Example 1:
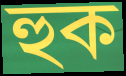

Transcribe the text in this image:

হুক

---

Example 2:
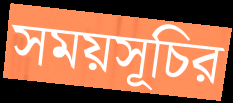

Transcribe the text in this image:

সময়সূচির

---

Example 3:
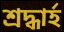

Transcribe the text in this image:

শ্রদ্ধার্হ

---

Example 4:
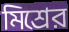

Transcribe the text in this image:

মিশ্রের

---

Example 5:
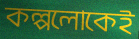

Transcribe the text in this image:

কল্পলোকেই